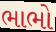
ભાભો